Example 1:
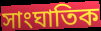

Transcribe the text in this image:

সাংঘাতিক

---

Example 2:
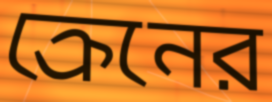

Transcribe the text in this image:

ক্রেনের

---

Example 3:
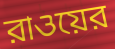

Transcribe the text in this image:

রাওয়ের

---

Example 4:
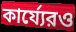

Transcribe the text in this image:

কার্য্যেরও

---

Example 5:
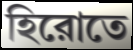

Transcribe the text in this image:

হিরোতে